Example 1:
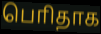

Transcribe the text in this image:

பெரிதாக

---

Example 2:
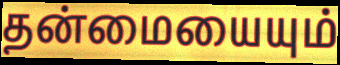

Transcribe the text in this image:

தன்மையையும்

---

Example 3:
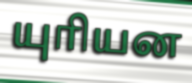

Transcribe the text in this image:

யுரியன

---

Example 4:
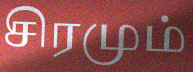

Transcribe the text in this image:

சிரமும்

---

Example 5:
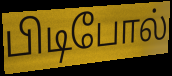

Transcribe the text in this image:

பிடிபோல்